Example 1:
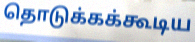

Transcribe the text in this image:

தொடுக்கக்கூடிய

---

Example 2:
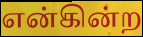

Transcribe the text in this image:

என்கின்ற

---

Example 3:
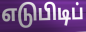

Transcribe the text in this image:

எடுபிடிப்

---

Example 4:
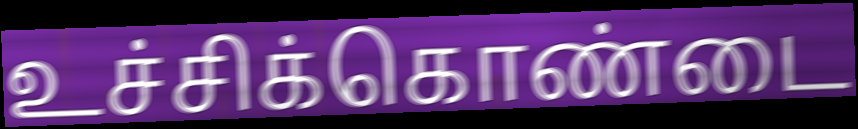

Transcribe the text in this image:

உச்சிக்கொண்டை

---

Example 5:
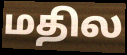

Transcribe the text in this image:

மதில